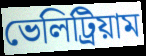
ভেলিট্রিয়াম